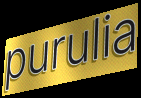
purulia